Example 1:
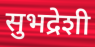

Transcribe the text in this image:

सुभद्रेशी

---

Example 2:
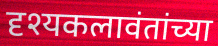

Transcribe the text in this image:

दृश्यकलावंतांच्या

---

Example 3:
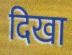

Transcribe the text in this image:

दिखा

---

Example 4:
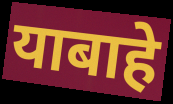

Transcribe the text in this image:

याबाहे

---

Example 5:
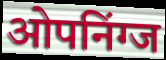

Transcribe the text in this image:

ओपनिंग्ज